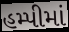
હમ્પીમાં